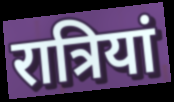
रात्रियां